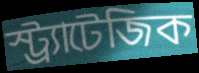
স্ট্র্যাটেজিক